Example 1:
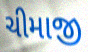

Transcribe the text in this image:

ચીમાજી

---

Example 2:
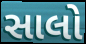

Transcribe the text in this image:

સાલો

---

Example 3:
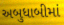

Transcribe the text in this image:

અબુધાબીમાં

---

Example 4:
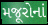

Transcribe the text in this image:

મજૂરોનાં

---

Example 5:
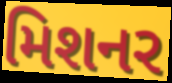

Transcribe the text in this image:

મિશનર